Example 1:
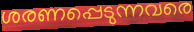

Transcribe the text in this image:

ശരണപ്പെടുന്നവരെ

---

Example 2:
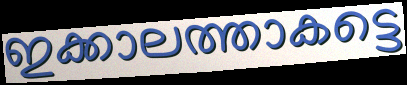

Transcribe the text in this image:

ഇക്കാലത്താകട്ടെ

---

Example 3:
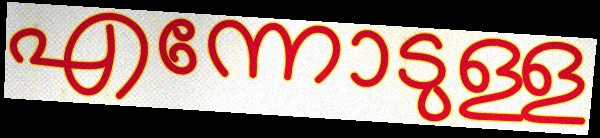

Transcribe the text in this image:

എന്നോടുള്ള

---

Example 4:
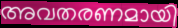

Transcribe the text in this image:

അവതരണമായി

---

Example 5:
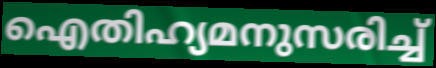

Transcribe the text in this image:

ഐതിഹ്യമനുസരിച്ച്